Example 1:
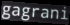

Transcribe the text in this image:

gagrani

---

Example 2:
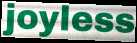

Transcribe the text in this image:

joyless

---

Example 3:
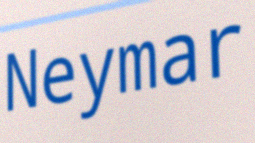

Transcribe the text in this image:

Neymar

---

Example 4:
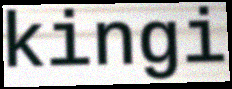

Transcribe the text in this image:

kingi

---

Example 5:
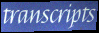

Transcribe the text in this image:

transcripts